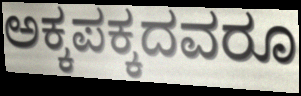
ಅಕ್ಕಪಕ್ಕದವರೂ